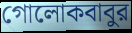
গোলোকবাবুর